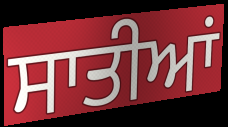
ਸਾਤੀਆਂ